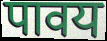
पावय